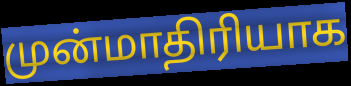
முன்மாதிரியாக